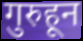
गुरुहून